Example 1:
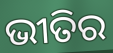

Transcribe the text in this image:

ଭୀତିର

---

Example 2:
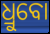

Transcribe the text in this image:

ଧ୍ରୁବୋ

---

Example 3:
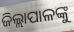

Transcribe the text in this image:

ଜିଲ୍ଲାପାଳଙ୍କୁ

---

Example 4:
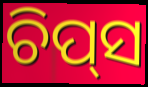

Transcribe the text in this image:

ଚିପ୍‌ସ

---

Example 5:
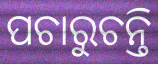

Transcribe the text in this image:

ପଚାରୁଚନ୍ତି